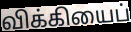
விக்கியைப்